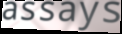
assays